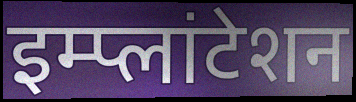
इम्प्लांटेशन